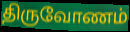
திருவோணம்